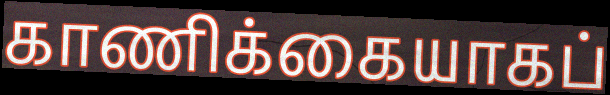
காணிக்கையாகப்